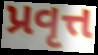
પ્રવૃત્ત